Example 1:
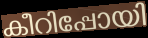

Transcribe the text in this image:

കീറിപ്പോയി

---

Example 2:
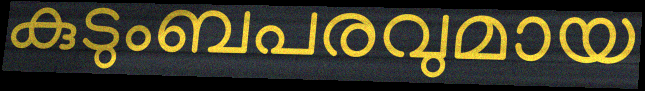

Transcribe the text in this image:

കുടുംബപരവുമായ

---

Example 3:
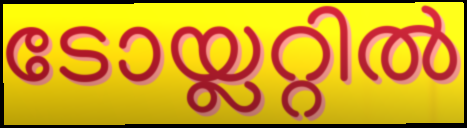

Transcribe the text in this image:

ടോയ്ലറ്റിൽ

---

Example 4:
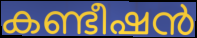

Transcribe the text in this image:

കണ്ടീഷൻ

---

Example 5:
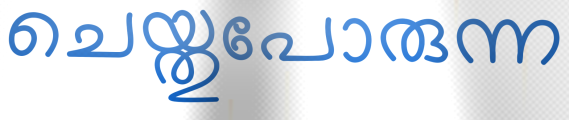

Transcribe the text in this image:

ചെയ്തുപോരുന്ന